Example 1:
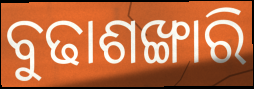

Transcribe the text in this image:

ବୁଢାଶଙ୍ଖାରି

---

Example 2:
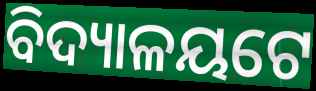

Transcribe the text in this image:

ବିଦ୍ୟାଳୟଟେ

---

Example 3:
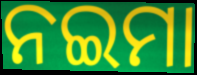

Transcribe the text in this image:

ନଇମା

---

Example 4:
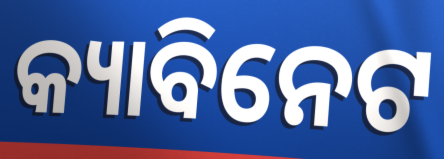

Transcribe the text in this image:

କ୍ୟାବିନେଟ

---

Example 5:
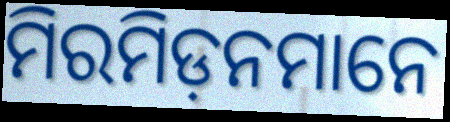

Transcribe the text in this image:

ମିରମିଡ଼ନମାନେ